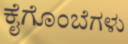
ಕೈಗೊಂಬೆಗಳು